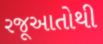
રજૂઆતોથી